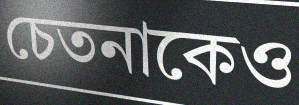
চেতনাকেও